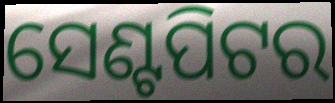
ସେଣ୍ଟପିଟର